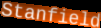
Stanfield